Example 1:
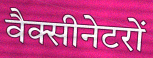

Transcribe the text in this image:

वैक्सीनेटरों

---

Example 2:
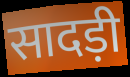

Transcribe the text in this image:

सादड़ी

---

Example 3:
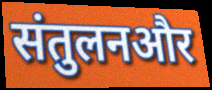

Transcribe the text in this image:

संतुलनऔर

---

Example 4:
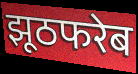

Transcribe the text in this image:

झूठफरेब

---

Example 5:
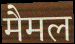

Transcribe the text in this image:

मैमल